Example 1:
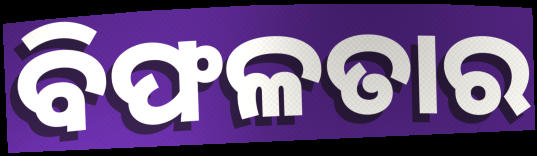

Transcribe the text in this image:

ବିଫଳତାର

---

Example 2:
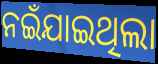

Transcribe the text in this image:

ନଇଁଯାଇଥିଲା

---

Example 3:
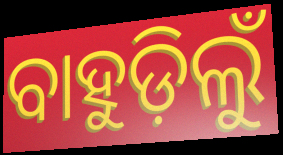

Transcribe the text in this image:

ବାହୁଡ଼ିଲୁଁ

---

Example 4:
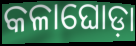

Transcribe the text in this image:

କଳାଘୋଡ଼ା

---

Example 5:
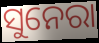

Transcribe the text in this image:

ସୁନେରା